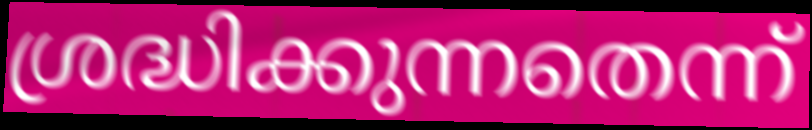
ശ്രദ്ധിക്കുന്നതെന്ന്